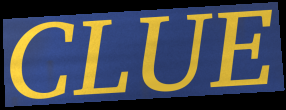
CLUE